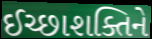
ઈચ્છાશક્તિને